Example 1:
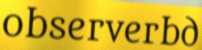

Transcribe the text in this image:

observerbd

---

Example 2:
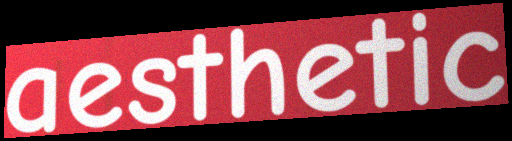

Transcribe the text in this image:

aesthetic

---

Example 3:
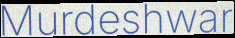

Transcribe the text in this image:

Murdeshwar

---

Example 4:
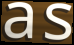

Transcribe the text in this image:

as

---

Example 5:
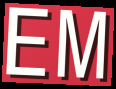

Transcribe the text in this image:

EM